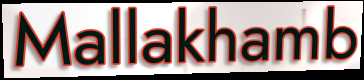
Mallakhamb